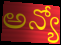
అన్యో